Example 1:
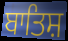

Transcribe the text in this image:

ਬਾਤਿਸ਼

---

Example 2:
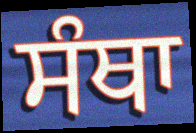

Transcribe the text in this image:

ਸੰਥਾ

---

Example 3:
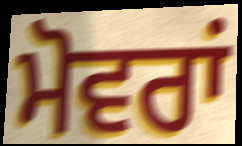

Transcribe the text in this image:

ਮੋਵਰਾਂ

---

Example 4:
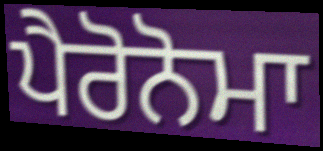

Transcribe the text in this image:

ਪੈਰੋਨੋਮਾ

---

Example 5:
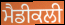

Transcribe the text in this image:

ਮੈਡੀਕਲੀ